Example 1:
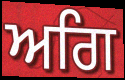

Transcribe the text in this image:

ਅਗਿ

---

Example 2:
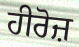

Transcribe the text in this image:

ਹੀਰੋਜ਼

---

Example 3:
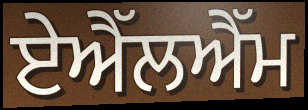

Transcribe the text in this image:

ਏਐੱਲਐੱਮ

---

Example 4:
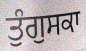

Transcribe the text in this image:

ਤੁੰਗੁਸਕਾ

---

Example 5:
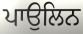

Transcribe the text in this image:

ਪਾਉਲਿਨ